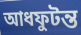
আধফুটন্ত